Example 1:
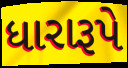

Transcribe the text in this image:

ધારારૂપે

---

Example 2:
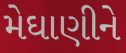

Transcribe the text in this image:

મેઘાણીને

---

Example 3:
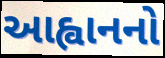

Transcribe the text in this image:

આહ્વાનનો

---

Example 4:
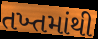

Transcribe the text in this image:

તખ્તમાંથી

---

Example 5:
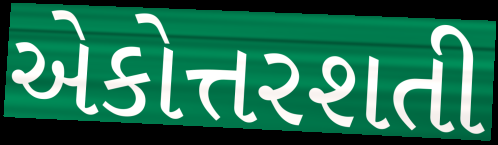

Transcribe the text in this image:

એકોત્તરશતી